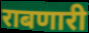
राबणारी